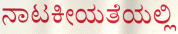
ನಾಟಕೀಯತೆಯಲ್ಲಿ